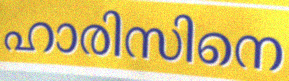
ഹാരിസിനെ